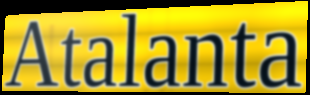
Atalanta